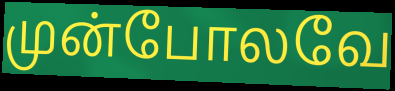
முன்போலவே